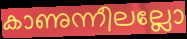
കാണുന്നീലല്ലോ